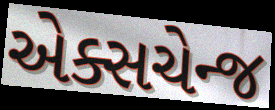
એક્સચેન્જ